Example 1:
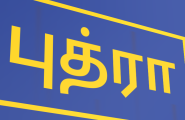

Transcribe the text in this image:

புத்ரா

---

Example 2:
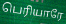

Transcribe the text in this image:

பெரியாரே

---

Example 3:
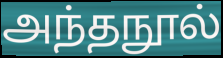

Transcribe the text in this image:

அந்தநூல்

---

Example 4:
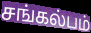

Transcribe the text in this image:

சங்கல்பம்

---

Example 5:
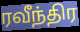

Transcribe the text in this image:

ரவீந்திர